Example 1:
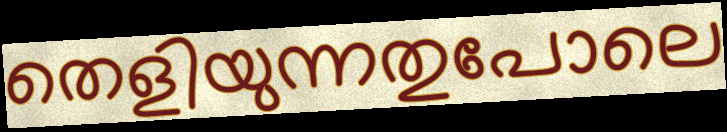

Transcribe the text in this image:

തെളിയുന്നതുപോലെ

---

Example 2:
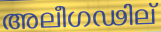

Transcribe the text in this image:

അലീഗഢില്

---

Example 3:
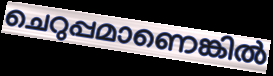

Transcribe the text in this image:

ചെറുപ്പമാണെങ്കിൽ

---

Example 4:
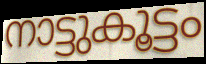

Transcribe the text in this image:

നാട്ടുകൂട്ടം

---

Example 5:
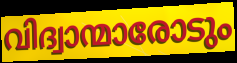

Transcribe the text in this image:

വിദ്വാന്മാരോടും